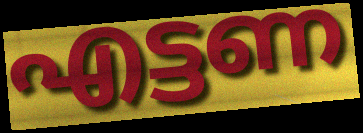
എട്ടണ